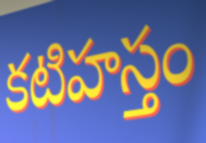
కటిహస్తం